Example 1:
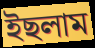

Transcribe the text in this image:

ইছলাম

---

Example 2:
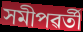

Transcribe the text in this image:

সমীপৱৰ্তী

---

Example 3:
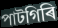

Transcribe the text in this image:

পাটগিৰি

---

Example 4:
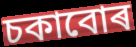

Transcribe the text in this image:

চকাবোৰ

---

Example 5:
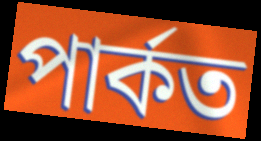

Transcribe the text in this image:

পাৰ্কত